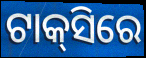
ଟାକ୍‌ସିରେ